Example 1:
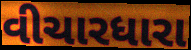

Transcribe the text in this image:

વીચારધારા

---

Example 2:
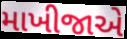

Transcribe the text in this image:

માખીજાએ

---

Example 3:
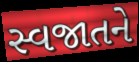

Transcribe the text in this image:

સ્વજાતને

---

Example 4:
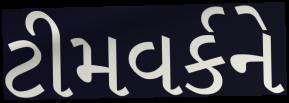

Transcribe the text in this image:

ટીમવર્કને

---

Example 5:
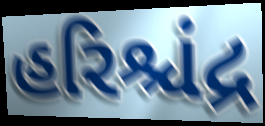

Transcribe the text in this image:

હરિશ્ચંદ્ર